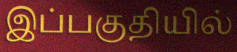
இப்பகுதியில்